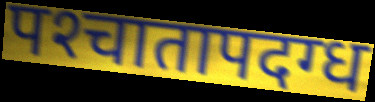
पश्चातापदग्ध